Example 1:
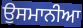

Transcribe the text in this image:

ਉਸਮਾਨੀਆ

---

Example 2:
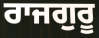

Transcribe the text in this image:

ਰਾਜਗੁਰੂ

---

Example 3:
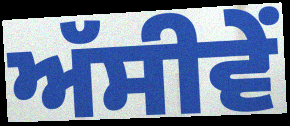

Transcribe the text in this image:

ਅੱਸੀਵੇਂ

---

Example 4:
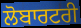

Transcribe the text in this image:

ਲੋਬਾਰਟਰੀ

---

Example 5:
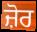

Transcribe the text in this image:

ਜ਼ੋਰ